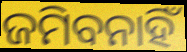
ଜମିବନାହିଁ